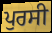
ਪੁਰਸੀ